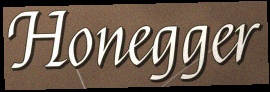
Honegger